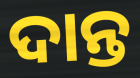
ଦାନ୍ତ